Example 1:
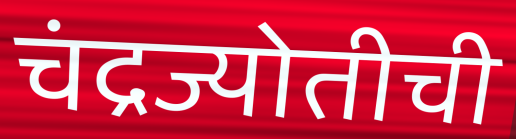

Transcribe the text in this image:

चंद्रज्योतीची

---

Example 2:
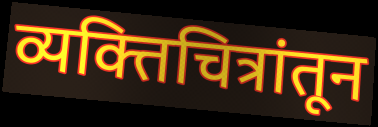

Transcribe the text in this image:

व्यक्तिचित्रांतून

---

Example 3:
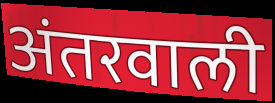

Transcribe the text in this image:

अंतरवाली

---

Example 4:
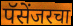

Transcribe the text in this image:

पॅसेंजरचा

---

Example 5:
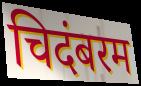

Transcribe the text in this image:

चिदंबरम